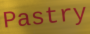
Pastry